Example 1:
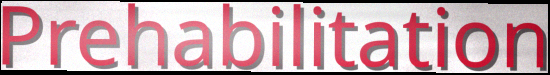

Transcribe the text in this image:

Prehabilitation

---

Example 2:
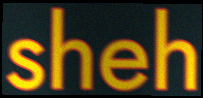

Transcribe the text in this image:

sheh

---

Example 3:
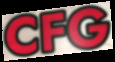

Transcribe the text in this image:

CFG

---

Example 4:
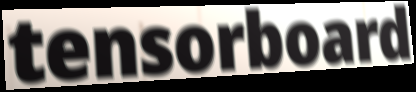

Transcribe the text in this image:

tensorboard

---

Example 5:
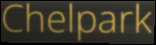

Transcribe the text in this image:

Chelpark